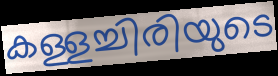
കള്ളച്ചിരിയുടെ